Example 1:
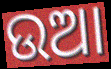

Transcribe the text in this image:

ଉଆ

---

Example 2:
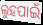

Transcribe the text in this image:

ଲୁହପାଇଁ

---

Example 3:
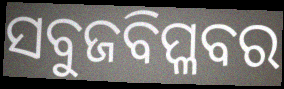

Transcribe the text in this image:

ସବୁଜବିପ୍ଳବର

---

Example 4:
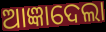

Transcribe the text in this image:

ଆଜ୍ଞାଦେଲା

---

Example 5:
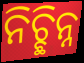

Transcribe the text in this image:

ନିଚ୍ଛିନ୍ନ